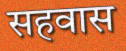
सहवास